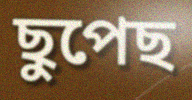
ছুপেছ